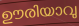
ഊരിയാവു